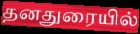
தனதுரையில்